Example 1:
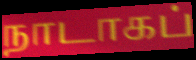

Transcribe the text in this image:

நாடாகப்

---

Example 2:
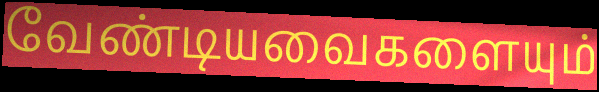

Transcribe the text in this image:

வேண்டியவைகளையும்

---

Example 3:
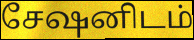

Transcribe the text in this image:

சேஷனிடம்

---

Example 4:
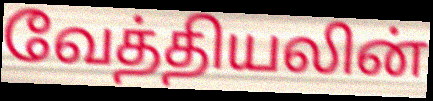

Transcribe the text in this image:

வேத்தியலின்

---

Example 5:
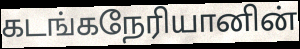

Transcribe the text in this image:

கடங்கநேரியானின்